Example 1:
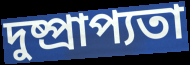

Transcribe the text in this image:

দুষ্প্রাপ্যতা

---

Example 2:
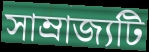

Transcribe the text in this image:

সাম্রাজ্যটি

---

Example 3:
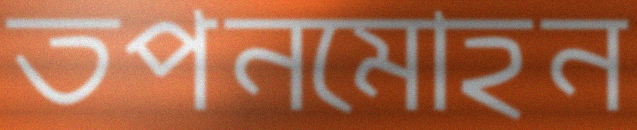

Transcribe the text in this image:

তপনমোহন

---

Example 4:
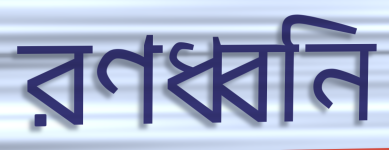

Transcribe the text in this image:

রণধ্বনি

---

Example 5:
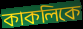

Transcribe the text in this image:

কাকলিকে